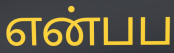
என்பப